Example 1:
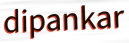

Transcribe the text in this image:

dipankar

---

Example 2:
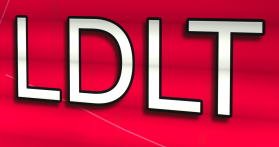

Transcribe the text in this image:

LDLT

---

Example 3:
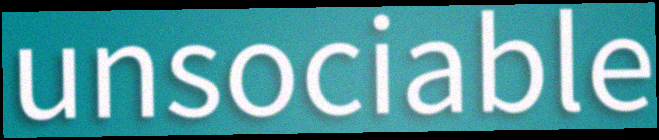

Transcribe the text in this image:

unsociable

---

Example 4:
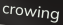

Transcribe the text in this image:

crowing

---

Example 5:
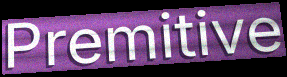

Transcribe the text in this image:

Premitive